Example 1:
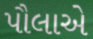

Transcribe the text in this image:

પૌલાએ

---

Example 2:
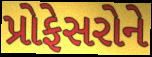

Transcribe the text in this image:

પ્રોફેસરોને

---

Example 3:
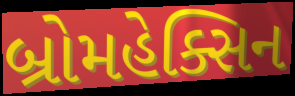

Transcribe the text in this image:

બ્રોમહેક્સિન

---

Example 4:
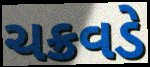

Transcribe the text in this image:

ચક્રવડે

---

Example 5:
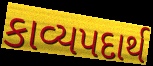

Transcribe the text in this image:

કાવ્યપદાર્થ